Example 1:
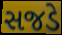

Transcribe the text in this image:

સજડે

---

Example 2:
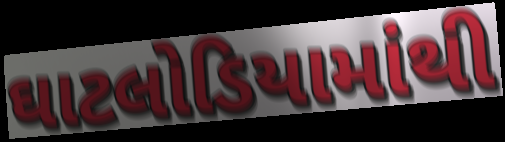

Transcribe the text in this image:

ઘાટલોડિયામાંથી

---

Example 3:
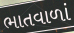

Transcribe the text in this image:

ભાતવાળાં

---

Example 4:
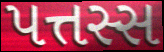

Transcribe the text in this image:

પત્તસ્સ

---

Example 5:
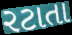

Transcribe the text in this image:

રટાતા